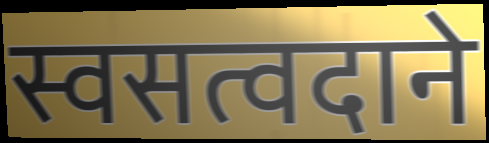
स्वसत्वदाने